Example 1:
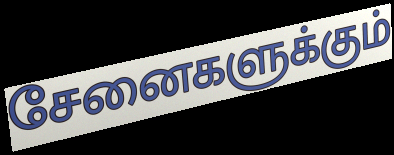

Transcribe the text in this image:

சேனைகளுக்கும்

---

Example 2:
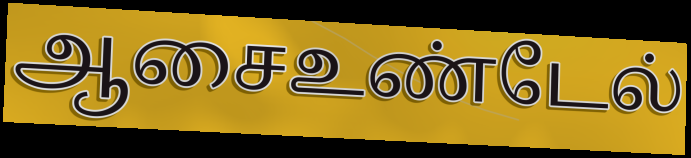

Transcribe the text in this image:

ஆசைஉண்டேல்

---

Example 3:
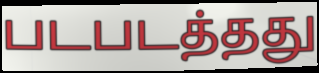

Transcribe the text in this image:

படபடத்தது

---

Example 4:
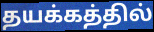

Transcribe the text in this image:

தயக்கத்தில்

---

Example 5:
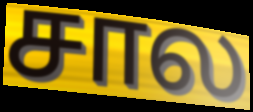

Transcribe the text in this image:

சால